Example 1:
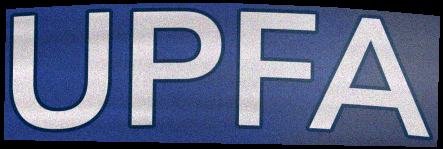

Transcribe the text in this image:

UPFA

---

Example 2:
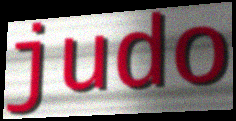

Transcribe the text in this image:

judo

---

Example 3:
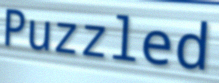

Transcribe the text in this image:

Puzzled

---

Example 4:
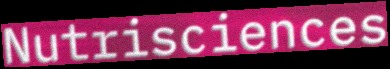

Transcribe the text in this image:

Nutrisciences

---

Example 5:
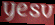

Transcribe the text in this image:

yesu